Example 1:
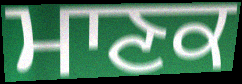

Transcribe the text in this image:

ਮਾਣਕ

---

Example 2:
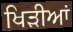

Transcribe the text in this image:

ਖਿੜੀਆਂ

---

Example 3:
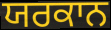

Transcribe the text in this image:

ਯਰਕਾਨ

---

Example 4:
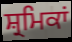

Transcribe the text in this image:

ਸ਼੍ਰਮਿਕਾਂ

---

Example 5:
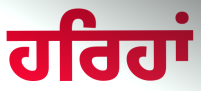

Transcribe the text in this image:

ਹਰਿਹਾਂ